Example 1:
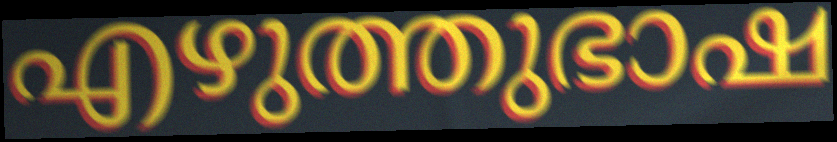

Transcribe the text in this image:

എഴുത്തുഭാഷ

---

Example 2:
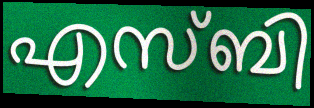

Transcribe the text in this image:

എസ്ബി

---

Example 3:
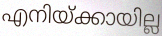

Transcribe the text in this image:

എനിയ്ക്കായില്ല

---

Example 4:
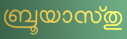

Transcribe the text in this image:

ബ്രൂയാസ്തു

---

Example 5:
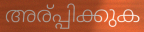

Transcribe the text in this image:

അര്പ്പിക്കുക